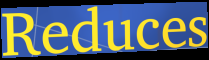
Reduces